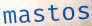
mastos